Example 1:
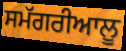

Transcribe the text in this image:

ਸਮੱਗਰੀਆਲੂ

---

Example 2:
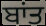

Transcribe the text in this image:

ਬਾਂਤ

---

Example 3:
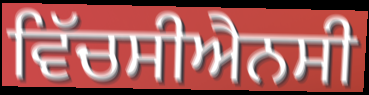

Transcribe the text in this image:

ਵਿੱਚਸੀਐਨਸੀ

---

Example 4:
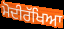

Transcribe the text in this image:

ਮੋਦੀਰੱਖਿਆ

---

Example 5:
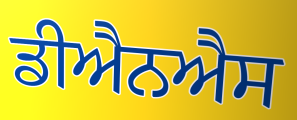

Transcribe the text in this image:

ਡੀਐਨਐਸ